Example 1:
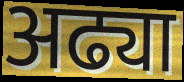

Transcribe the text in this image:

अढ्या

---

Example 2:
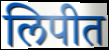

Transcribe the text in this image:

लिपीत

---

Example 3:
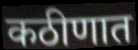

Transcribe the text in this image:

कठीणात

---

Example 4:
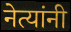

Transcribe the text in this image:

नेत्यांनी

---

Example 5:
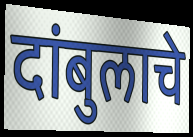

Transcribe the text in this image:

दांबुलाचे